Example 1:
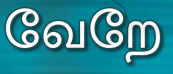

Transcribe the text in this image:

வேறே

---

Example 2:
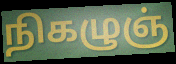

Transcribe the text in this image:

நிகழுஞ்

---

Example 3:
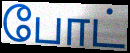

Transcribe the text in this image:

போட்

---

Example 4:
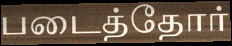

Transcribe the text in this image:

படைத்தோர்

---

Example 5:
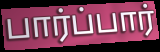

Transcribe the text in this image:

பார்ப்பார்